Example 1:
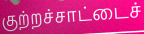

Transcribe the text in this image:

குற்றச்சாட்டைச்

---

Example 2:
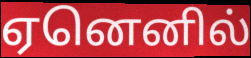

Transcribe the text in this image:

ஏனெனில்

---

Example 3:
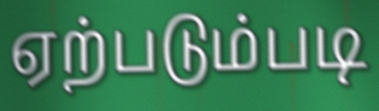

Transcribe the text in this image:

ஏற்படும்படி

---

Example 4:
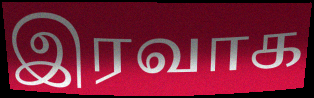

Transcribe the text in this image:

இரவாக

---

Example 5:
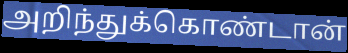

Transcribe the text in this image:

அறிந்துக்கொண்டான்